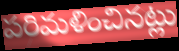
పరిమళించినట్లు